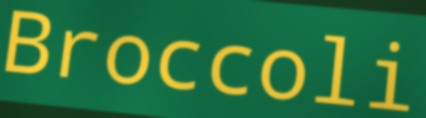
Broccoli